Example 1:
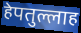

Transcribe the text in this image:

हेपतुल्लाह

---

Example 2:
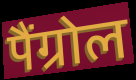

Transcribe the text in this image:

पैंग्रोल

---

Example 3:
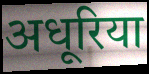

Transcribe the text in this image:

अधूरिया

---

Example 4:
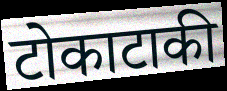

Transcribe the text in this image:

टोकाटाकी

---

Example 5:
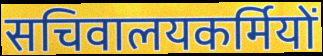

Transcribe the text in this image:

सचिवालयकर्मियों